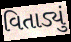
વિતાડ્યું